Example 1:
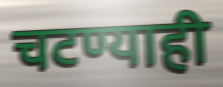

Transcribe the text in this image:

चटण्याही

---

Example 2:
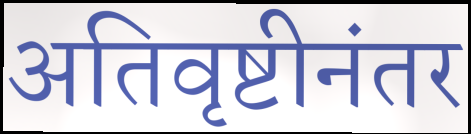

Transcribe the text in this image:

अतिवृष्टीनंतर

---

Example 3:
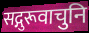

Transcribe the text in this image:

सद्गुरूवाचुनि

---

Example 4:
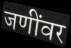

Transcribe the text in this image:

जणींवर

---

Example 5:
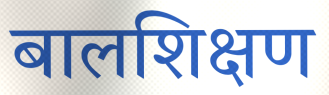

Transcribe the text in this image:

बालशिक्षण